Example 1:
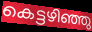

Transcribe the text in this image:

കെട്ടഴിഞ്ഞു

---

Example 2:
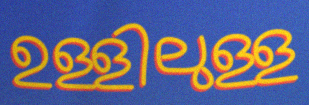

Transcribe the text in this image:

ഉള്ളിലുള്ള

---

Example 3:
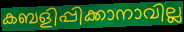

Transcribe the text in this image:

കബളിപ്പിക്കാനാവില്ല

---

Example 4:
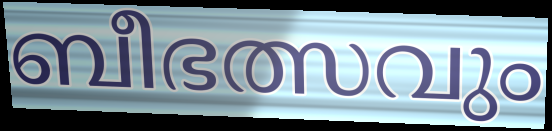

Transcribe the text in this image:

ബീഭത്സവും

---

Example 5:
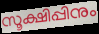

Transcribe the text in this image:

സൂക്ഷിപ്പിനും